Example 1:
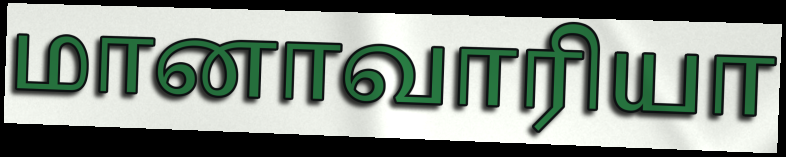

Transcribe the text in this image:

மானாவாரியா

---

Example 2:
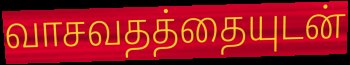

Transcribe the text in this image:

வாசவதத்தையுடன்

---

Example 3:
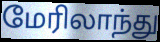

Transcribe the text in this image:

மேரிலாந்து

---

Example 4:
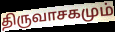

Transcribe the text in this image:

திருவாசகமும்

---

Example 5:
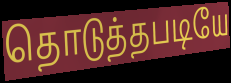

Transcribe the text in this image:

தொடுத்தபடியே